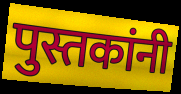
पुस्तकांनी